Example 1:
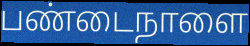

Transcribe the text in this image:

பண்டைநாளை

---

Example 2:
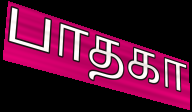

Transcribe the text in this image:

பாதகா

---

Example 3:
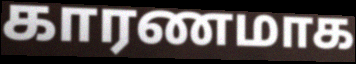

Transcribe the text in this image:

காரணமாக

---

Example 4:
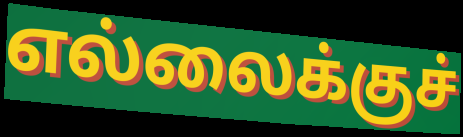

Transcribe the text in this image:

எல்லைக்குச்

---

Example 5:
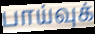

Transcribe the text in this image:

பாய்வுக்